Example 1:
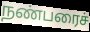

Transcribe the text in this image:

நண்பரைச்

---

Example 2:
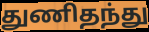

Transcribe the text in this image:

துணிதந்து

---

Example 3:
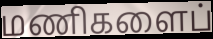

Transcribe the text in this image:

மணிகளைப்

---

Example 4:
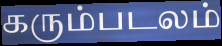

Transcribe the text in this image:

கரும்படலம்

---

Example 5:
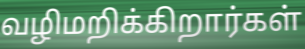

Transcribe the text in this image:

வழிமறிக்கிறார்கள்